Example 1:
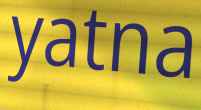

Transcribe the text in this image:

yatna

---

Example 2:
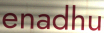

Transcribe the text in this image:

enadhu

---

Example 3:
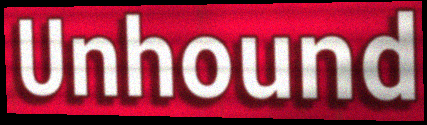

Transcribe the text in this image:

Unhound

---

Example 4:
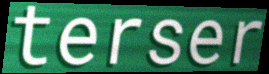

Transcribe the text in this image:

terser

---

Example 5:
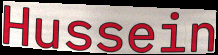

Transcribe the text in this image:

Hussein